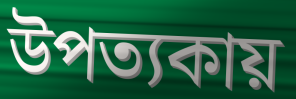
উপত্যকায়